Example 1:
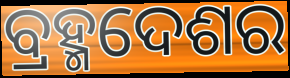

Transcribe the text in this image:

ବ୍ରହ୍ମଦେଶର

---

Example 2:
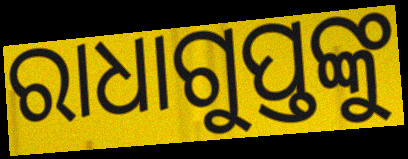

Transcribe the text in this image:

ରାଧାଗୁପ୍ତଙ୍କୁ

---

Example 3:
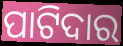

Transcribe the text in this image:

ପାଟିଦାର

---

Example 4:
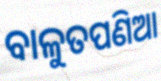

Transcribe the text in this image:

ବାଳୁତପଣିଆ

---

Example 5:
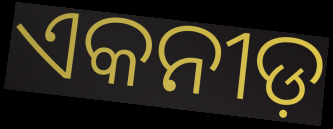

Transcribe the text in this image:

ଏକନୀଡ଼